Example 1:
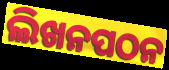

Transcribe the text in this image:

ଲିଖନପଠନ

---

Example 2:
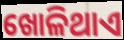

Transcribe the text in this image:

ଖୋଳିଥାଏ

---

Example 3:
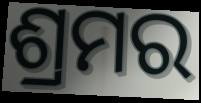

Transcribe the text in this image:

ଶ୍ରମର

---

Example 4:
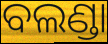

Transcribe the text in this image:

ବଲଣ୍ଡା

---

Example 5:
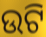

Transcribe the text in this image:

ଉଟି